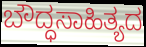
ಬೌದ್ಧಸಾಹಿತ್ಯದ